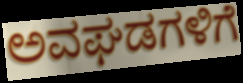
ಅವಘಡಗಳಿಗೆ